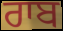
ਰਾਬ